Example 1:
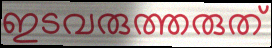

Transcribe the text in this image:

ഇടവരുത്തരുത്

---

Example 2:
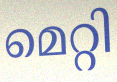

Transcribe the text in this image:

മെറ്റി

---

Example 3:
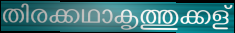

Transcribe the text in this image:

തിരക്കഥാകൃത്തുക്കള്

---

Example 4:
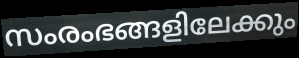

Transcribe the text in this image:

സംരംഭങ്ങളിലേക്കും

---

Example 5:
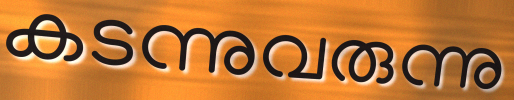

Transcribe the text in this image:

കടന്നുവരുന്നു